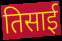
तिसाई